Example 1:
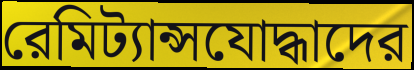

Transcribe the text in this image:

রেমিট্যান্সযোদ্ধাদের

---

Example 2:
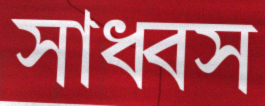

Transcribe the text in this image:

সাধ্বস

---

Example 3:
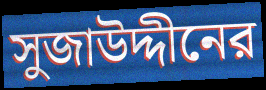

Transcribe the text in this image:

সুজাউদ্দীনের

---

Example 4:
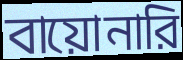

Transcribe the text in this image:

বায়োনারি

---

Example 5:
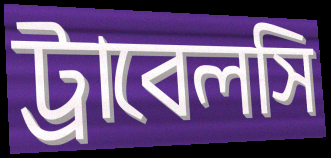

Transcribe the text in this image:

ট্রাবেলসি